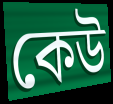
কেউ